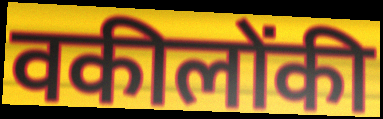
वकीलोंकी